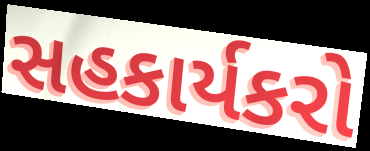
સહકાર્યકરો